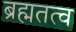
ब्रह्मतत्व